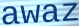
awaz